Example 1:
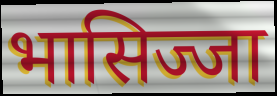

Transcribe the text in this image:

भासिज्जा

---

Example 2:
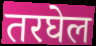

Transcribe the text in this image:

तरघेल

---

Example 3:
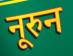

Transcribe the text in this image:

नूरुन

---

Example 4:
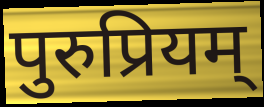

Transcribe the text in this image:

पुरुप्रियम्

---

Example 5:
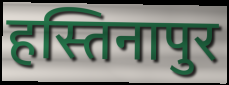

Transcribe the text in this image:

हस्तिनापुर